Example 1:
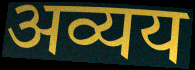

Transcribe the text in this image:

अव्यय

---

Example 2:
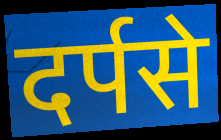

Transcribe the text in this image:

दर्पसे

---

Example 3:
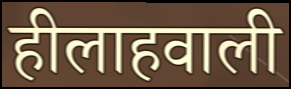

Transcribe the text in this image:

हीलाहवाली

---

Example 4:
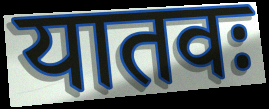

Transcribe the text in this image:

यातवः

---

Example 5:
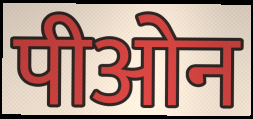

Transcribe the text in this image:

पीओन